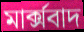
মার্ক্সবাদ